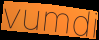
vumdi